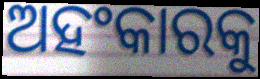
ଅହଂକାରକୁ